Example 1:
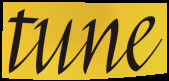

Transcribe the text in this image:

tune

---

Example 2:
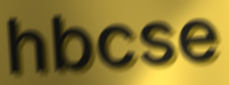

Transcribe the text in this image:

hbcse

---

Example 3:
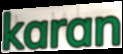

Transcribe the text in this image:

karan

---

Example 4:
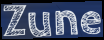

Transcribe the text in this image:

Zune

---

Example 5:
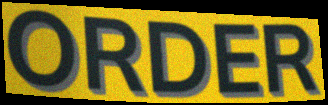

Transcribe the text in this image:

ORDER